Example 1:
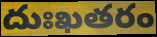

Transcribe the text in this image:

దుఃఖతరం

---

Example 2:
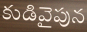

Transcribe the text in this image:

కుడివైపున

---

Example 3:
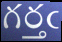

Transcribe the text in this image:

గర్తఁ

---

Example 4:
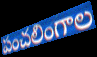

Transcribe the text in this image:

పంచలింగాల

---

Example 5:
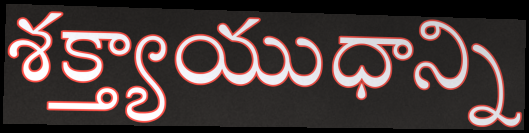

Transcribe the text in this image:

శక్త్యాయుధాన్ని